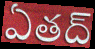
ఏతద్